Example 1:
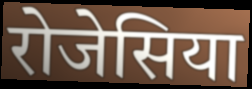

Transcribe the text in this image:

रोजेसिया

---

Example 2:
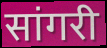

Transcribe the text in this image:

सांगरी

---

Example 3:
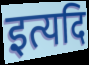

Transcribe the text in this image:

इत्यदि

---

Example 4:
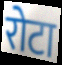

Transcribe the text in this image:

रोटा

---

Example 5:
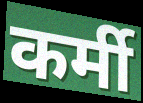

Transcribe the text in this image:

कर्मी